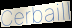
Cerbaill